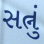
સત્નું